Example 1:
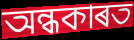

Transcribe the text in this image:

অন্ধকাৰত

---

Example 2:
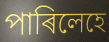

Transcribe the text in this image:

পাৰিলেহে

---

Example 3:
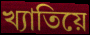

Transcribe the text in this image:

খ্যাতিয়ে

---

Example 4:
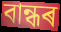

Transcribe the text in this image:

বান্ধৰ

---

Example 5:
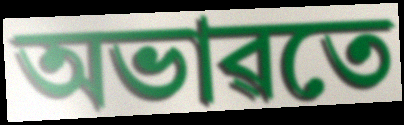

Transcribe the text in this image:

অভাৱতে